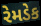
રેમડેક